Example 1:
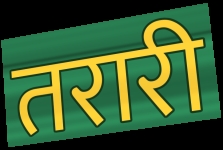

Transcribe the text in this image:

तरारी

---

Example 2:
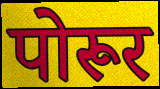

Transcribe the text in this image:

पोरूर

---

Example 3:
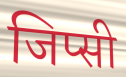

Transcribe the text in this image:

जिप्सी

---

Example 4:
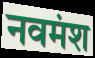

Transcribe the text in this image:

नवमंश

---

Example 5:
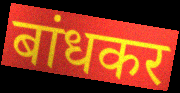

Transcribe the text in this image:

बांधकर